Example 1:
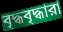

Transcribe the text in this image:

বৃদ্ধবৃদ্ধারা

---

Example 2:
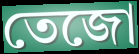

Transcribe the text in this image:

তেজো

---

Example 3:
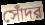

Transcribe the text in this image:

সোঁদর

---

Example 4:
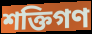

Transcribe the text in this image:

শক্তিগণ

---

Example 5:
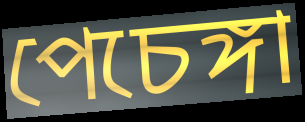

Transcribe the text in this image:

পেচেঙ্গা